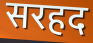
सरहद